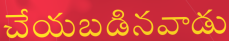
చేయబడినవాడు